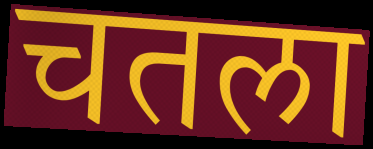
चतला